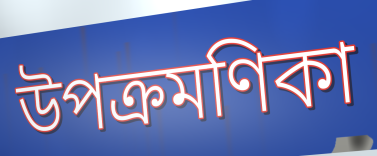
উপক্রমণিকা